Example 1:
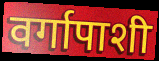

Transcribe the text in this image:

वर्गापाशी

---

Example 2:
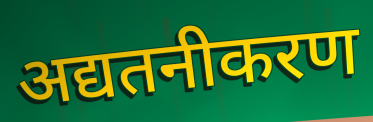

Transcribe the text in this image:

अद्यतनीकरण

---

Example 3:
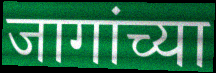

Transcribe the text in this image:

जागांच्या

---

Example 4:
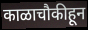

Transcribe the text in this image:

काळाचौकीहून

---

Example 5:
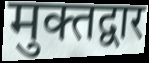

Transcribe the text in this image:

मुक्तद्वार